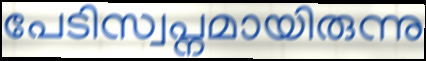
പേടിസ്വപ്നമായിരുന്നു